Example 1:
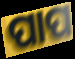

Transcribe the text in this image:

ପାପ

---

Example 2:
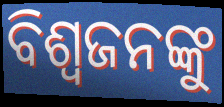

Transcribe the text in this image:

ବିଶ୍ୱଜନଙ୍କୁ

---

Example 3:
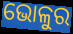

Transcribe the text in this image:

ଭୋଳୁର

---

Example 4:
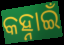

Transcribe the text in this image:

କହ୍ନାଇଁ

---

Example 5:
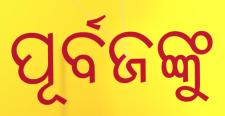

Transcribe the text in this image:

ପୂର୍ବଜଙ୍କୁ